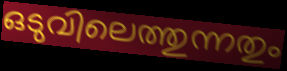
ഒടുവിലെത്തുന്നതും